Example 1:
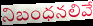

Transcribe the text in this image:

నిబంధనలివే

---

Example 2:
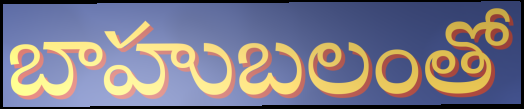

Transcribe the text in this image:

బాహుబలంతో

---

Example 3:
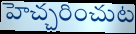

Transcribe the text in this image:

హెచ్చరించుట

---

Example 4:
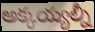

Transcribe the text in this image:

అక్కయ్యల్నీ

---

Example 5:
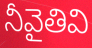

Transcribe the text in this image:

నీవైతివి